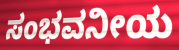
ಸಂಭವನೀಯ